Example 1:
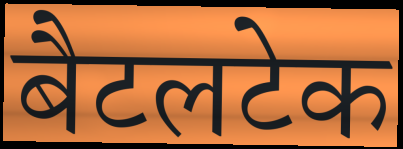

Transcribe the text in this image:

बैटलटेक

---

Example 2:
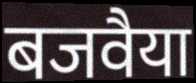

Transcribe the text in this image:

बजवैया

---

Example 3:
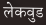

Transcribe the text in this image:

लेकवुड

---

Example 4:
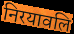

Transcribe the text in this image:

निरयावलि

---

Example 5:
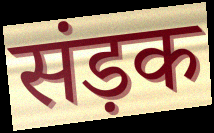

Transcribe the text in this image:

संड़क